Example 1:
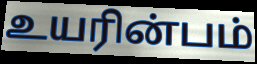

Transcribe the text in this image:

உயரின்பம்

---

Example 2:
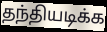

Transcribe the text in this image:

தந்தியடிக்க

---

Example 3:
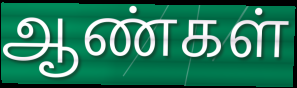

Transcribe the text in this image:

ஆண்கள்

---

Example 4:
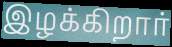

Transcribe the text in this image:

இழக்கிறார்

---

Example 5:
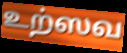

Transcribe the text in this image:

உற்ஸவ